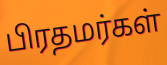
பிரதமர்கள்